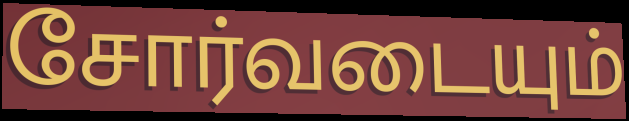
சோர்வடையும்